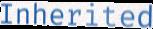
Inherited